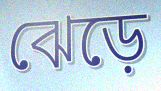
ঝেড়ে